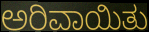
ಅರಿವಾಯಿತು